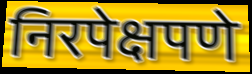
निरपेक्षपणे